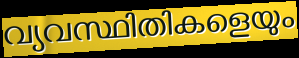
വ്യവസ്ഥിതികളെയും